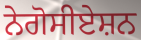
ਨੇਗੋਸੀਏਸ਼ਨ